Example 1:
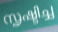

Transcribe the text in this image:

സൃഷ്ടിച്ച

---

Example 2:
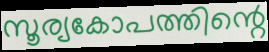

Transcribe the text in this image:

സൂര്യകോപത്തിന്റെ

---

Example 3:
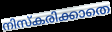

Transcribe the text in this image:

നിസ്കരിക്കാതെ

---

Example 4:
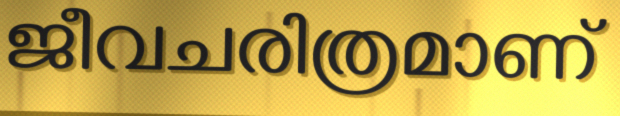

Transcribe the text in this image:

ജീവചരിത്രമാണ്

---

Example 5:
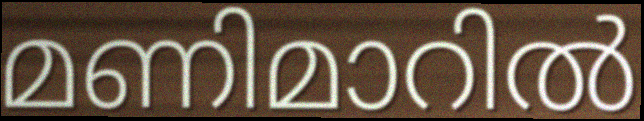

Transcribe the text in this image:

മണിമാറിൽ